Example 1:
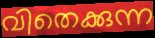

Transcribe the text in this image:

വിതെക്കുന്ന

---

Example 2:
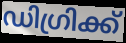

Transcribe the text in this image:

ഡിഗ്രിക്ക്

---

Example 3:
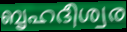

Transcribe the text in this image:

ബൃഹദീശ്വര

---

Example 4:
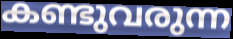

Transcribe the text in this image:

കണ്ടുവരുന്ന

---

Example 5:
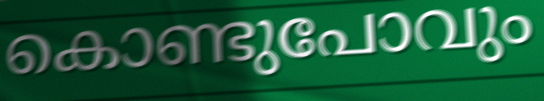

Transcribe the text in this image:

കൊണ്ടുപോവും